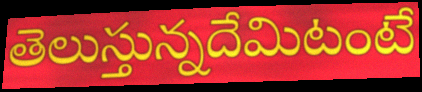
తెలుస్తున్నదేమిటంటే